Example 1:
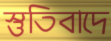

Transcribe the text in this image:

স্তুতিবাদে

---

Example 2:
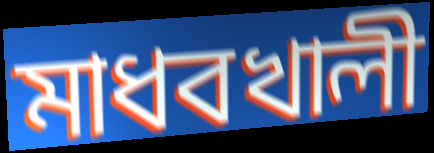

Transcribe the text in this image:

মাধবখালী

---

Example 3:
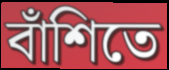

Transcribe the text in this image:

বাঁশিতে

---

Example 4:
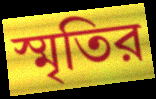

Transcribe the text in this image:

স্মৃতির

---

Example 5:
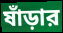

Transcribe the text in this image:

ষাঁড়ার